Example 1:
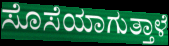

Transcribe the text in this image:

ಸೊಸೆಯಾಗುತ್ತಾಳೆ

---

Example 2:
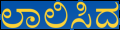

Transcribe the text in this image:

ಲಾಲಿಸಿದ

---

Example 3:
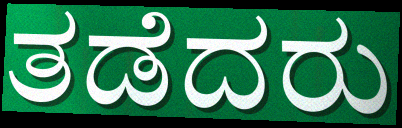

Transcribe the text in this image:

ತಡೆದರು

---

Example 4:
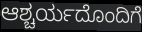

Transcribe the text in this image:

ಆಶ್ಚರ್ಯದೊಂದಿಗೆ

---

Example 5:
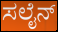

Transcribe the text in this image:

ಸಲೈನ್